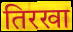
तिरखा